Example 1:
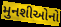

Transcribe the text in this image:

મુનશીઓનો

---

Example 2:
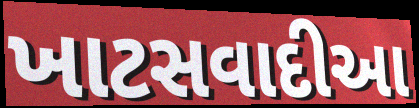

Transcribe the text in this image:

ખાટસવાદીઆ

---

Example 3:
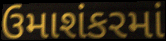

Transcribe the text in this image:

ઉમાશંકરમાં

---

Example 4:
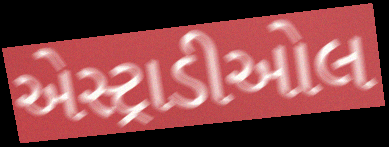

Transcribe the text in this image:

એસ્ટ્રાડીઓલ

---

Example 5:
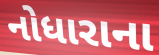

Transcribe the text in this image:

નોધારાના